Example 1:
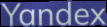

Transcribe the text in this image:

Yandex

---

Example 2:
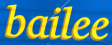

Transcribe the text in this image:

bailee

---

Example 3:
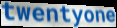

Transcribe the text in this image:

twentyone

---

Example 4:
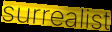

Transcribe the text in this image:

surrealist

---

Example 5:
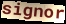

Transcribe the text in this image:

signor